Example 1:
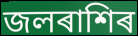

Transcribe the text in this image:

জলৰাশিৰ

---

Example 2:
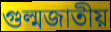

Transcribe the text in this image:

গুল্মজাতীয়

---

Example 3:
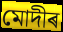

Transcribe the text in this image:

মোদীৰ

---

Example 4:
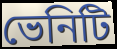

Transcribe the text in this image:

ভেনিটি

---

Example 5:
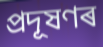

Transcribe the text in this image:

প্ৰদূষণৰ